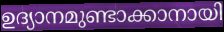
ഉദ്യാനമുണ്ടാക്കാനായി